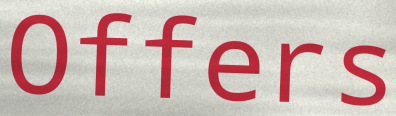
Offers